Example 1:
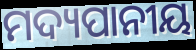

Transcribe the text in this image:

ମଦ୍ୟପାନୀୟ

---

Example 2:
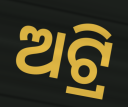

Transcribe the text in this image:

ଅଟ୍ରି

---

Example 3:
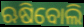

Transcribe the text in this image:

ଋଷିବୋଲି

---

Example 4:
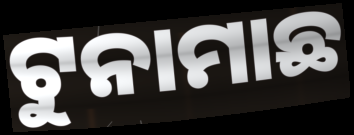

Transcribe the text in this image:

ଟୁନାମାଛ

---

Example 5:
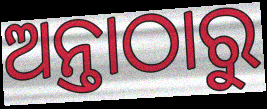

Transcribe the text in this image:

ଅନ୍ତାଠାରୁ